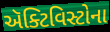
ઍક્ટિવિસ્ટોના